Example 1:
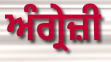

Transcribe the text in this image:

ਅੰਗ੍ਰੇਜ਼ੀ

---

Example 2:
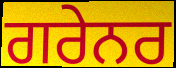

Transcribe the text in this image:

ਗਰੇਨਰ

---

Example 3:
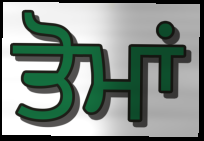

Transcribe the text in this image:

ਤੋਮਾਂ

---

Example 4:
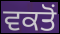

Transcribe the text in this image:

ਵਕਤੋਂ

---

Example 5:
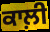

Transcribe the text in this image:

ਕਾਲ਼ੀ